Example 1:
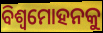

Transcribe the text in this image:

ବିଶ୍ଵମୋହନକୁ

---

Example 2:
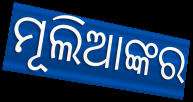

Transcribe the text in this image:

ମୂଲିଆଙ୍କର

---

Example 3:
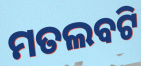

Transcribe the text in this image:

ମତଲବଟି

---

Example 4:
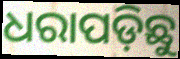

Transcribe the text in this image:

ଧରାପଡ଼ିଛୁ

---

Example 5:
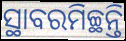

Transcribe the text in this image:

ସ୍ଥାବରମିଚ୍ଛନ୍ତି